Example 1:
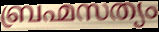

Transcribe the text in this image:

ബ്രഹ്മസത്യം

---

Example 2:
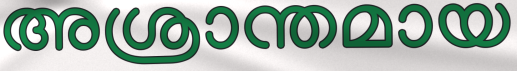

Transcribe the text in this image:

അശ്രാന്തമായ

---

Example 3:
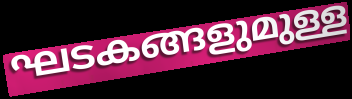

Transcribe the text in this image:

ഘടകങ്ങളുമുള്ള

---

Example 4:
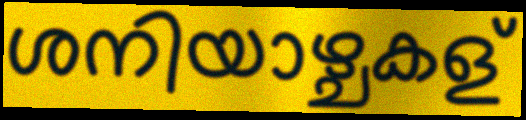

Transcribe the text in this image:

ശനിയാഴ്ചകള്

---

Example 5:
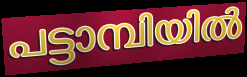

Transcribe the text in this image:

പട്ടാമ്പിയിൽ